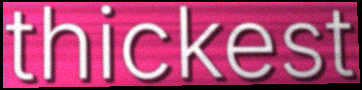
thickest